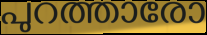
പുറത്താരോ